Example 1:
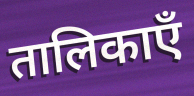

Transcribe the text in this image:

तालिकाएँ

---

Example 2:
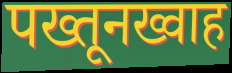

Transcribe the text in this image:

पख्तूनख्वाह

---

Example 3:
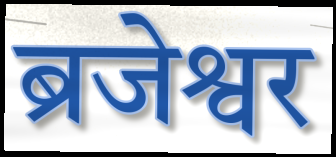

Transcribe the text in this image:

ब्रजेश्वर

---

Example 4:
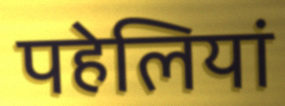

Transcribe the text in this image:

पहेलियां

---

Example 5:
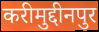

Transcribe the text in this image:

करीमुद्दीनपुर